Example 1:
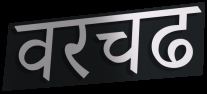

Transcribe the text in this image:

वरचढ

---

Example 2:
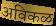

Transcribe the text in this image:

अविकळ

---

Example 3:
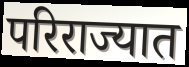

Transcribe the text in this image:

परिराज्यात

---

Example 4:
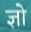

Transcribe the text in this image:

ज्ञो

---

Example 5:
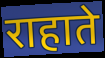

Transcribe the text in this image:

राहाते